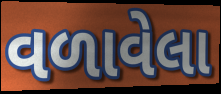
વળાવેલા